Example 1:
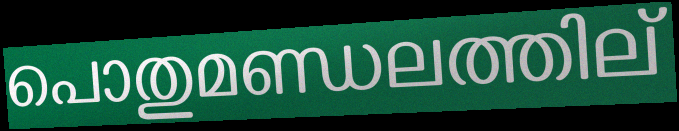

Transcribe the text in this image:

പൊതുമണ്ഡലത്തില്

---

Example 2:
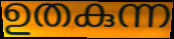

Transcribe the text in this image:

ഉതകുന്ന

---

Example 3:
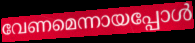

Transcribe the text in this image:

വേണമെന്നായപ്പോൾ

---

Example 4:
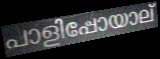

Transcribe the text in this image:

പാളിപ്പോയാല്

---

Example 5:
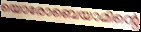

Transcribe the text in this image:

യൊരോബെയാമിന്റെ